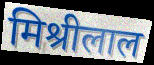
मिश्रीलाल